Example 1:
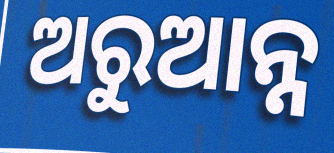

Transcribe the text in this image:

ଅରୁଆନ୍ନ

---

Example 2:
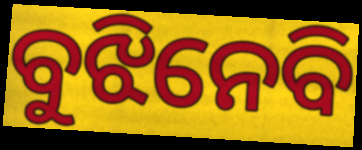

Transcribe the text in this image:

ବୁଝିନେବି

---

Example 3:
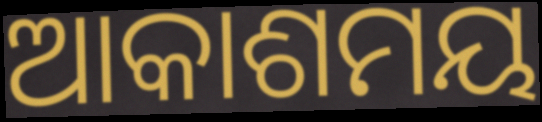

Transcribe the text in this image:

ଆକାଶମୟ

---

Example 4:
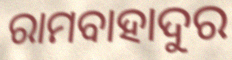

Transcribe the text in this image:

ରାମବାହାଦୁର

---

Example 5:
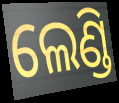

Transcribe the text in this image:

ଲେଣ୍ଡି